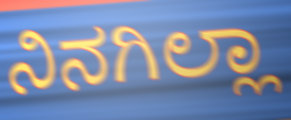
ನಿನಗಿಲ್ಲಾ